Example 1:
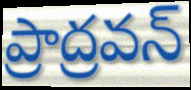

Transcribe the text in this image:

ప్రాద్రవన్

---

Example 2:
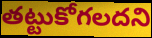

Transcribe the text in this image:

తట్టుకోగలదని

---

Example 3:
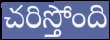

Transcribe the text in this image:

చరిస్తోంది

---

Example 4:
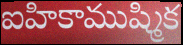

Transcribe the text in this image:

ఐహికాముష్మిక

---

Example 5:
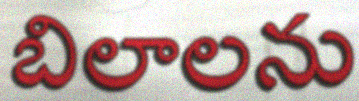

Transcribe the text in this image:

బిలాలను